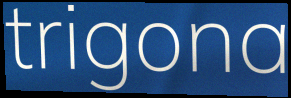
trigona